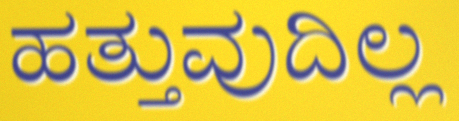
ಹತ್ತುವುದಿಲ್ಲ